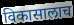
विकासालाच